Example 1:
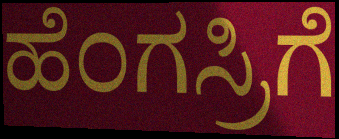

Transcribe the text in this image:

ಹೆಂಗಸ್ರಿಗೆ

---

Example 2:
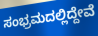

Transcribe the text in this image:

ಸಂಭ್ರಮದಲ್ಲಿದ್ದೇವೆ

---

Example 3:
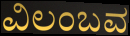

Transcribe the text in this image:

ವಿಲಂಬವ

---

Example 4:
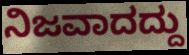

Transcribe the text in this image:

ನಿಜವಾದದ್ದು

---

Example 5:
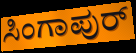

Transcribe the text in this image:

ಸಿಂಗಾಪುರ್